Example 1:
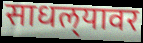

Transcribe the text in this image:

साधल्यावर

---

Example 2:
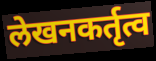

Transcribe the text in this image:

लेखनकर्तृत्व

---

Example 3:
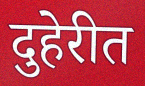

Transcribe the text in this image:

दुहेरीत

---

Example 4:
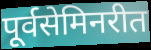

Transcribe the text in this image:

पूर्वसेमिनरीत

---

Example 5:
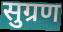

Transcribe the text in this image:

सुग्रण